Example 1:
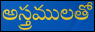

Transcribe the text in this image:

అస్త్రములతో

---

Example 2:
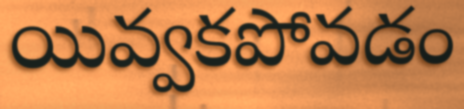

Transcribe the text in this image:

యివ్వకపోవడం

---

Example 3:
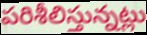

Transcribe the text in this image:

పరిశీలిస్తున్నట్లు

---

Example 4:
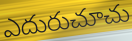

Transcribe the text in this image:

ఎదురుచూచు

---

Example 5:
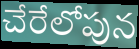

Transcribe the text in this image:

చేరేలోపున